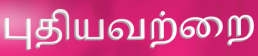
புதியவற்றை